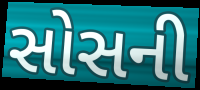
સોસની